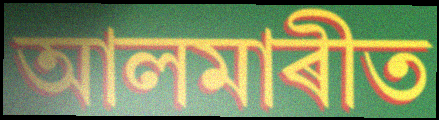
আলমাৰীত